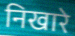
निखारे